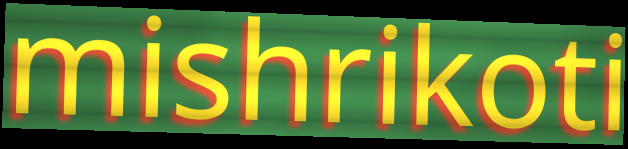
mishrikoti